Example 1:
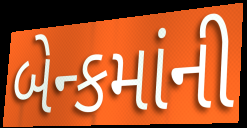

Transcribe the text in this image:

બેન્કમાંની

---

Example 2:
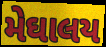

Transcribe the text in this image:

મેઘાલય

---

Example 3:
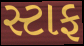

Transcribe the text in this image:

સ્ટાફ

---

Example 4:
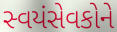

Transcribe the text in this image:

સ્વયંસેવકોને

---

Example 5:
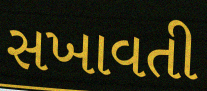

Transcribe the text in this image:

સખાવતી